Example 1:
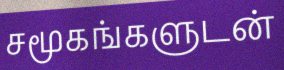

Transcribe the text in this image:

சமூகங்களுடன்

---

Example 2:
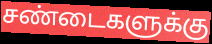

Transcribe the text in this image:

சண்டைகளுக்கு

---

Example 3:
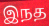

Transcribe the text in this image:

இநத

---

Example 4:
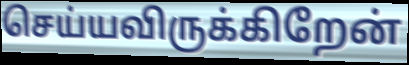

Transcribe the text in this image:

செய்யவிருக்கிறேன்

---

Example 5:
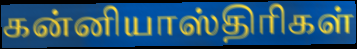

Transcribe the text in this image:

கன்னியாஸ்திரிகள்